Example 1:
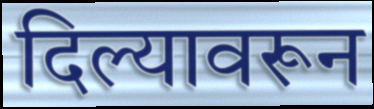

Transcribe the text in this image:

दिल्यावरून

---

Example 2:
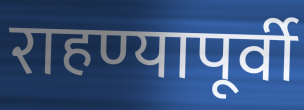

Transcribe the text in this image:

राहण्यापूर्वी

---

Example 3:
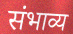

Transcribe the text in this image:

संभाव्य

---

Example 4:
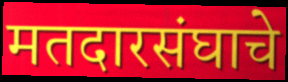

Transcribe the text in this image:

मतदारसंघाचे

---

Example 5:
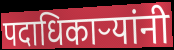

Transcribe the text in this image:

पदाधिकाऱ्यांनी